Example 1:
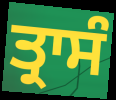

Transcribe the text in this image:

ਤ੍ਰਾਸੰ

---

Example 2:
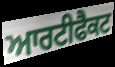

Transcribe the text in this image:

ਆਰਟੀਫੈਕਟ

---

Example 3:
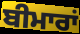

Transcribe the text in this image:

ਬੀਮਾਰਾਂ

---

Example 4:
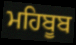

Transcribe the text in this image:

ਮਹਿਬੂਬ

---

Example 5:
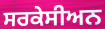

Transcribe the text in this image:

ਸਰਕੇਸੀਅਨ